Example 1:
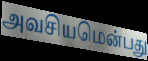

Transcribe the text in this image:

அவசியமென்பது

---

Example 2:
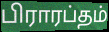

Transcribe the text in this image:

பிராரப்தம்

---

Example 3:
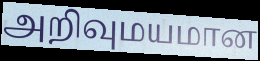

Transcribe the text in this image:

அறிவுமயமான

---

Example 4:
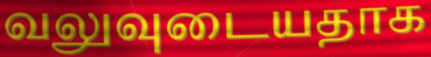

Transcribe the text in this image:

வலுவுடையதாக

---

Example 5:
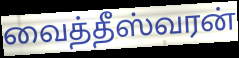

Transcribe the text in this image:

வைத்தீஸ்வரன்